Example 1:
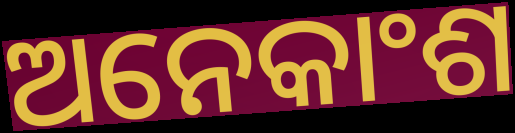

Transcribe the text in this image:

ଅନେକାଂଶ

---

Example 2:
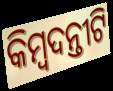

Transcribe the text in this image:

କିମ୍ୱଦନ୍ତୀଟି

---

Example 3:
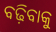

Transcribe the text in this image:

ବଢ଼ିବାକୁ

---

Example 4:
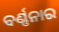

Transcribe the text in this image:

ବର୍ଣ୍ଣନାର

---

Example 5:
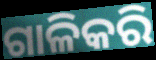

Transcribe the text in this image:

ଗାଳିକରି